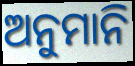
ଅନୁମାନି